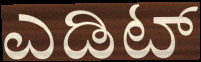
ಎಡಿಟ್